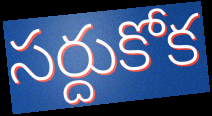
సర్దుకోక